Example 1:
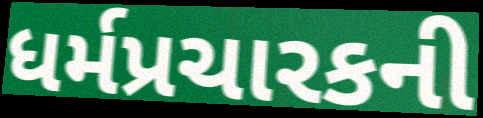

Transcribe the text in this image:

ધર્મપ્રચારકની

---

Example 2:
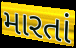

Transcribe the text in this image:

મારતાં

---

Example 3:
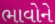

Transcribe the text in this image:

ભાવોને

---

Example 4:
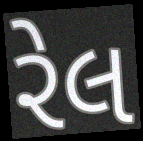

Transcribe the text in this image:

રેલ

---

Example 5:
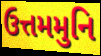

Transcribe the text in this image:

ઉત્તમમુનિ